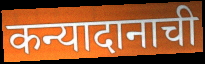
कन्यादानाची